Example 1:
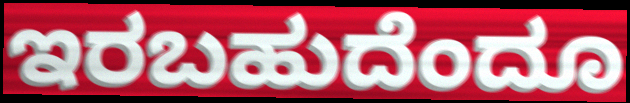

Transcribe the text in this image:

ಇರಬಹುದೆಂದೂ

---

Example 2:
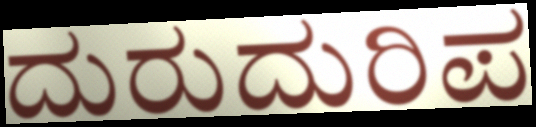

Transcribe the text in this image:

ದುರುದುರಿಪ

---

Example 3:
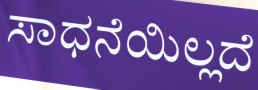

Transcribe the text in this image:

ಸಾಧನೆಯಿಲ್ಲದೆ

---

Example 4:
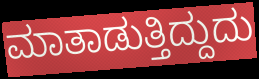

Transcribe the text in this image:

ಮಾತಾಡುತ್ತಿದ್ದುದು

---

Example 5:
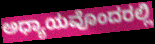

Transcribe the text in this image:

ಅಧ್ಯಾಯವೊಂದರಲ್ಲಿ